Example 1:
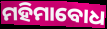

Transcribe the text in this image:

ମହିମାବୋଧ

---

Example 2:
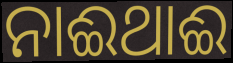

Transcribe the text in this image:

ନାଈଥାଈ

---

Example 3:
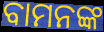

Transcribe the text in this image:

ବାମନଙ୍କ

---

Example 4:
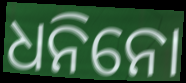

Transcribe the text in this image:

ଧନିନୋ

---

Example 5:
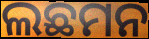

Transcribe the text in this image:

ଲଛମନ